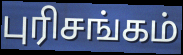
புரிசங்கம்